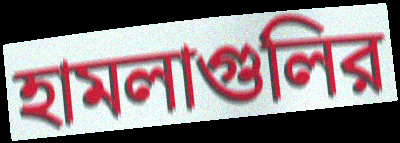
হামলাগুলির